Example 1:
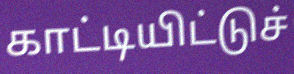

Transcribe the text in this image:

காட்டியிட்டுச்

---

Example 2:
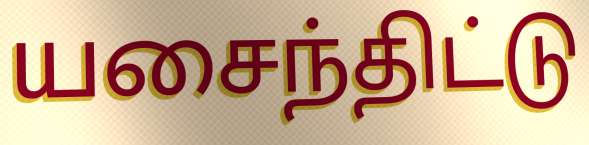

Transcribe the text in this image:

யசைந்திட்டு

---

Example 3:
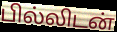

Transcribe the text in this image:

பில்லிடன்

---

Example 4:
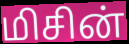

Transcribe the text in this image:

மிசின்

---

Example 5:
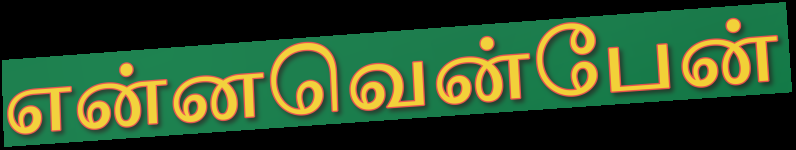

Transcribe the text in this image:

என்னவென்பேன்